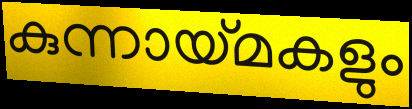
കുന്നായ്മകളും